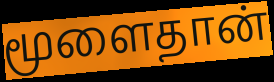
மூளைதான்